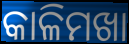
କାଳିମଖା